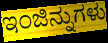
ಇಂಜಿನ್ನುಗಳು